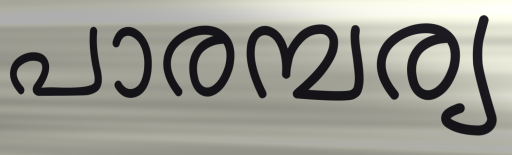
പാരമ്പര്യ